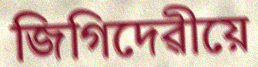
জিগিদেৱীয়ে